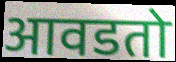
आवडतो